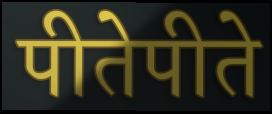
पीतेपीते